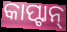
କାପ୍ଟାନ୍